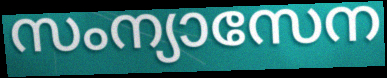
സംന്യാസേന